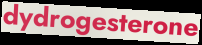
dydrogesterone